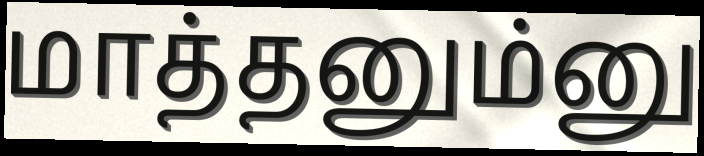
மாத்தனும்னு